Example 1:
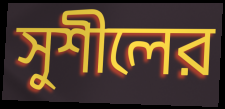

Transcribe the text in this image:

সুশীলের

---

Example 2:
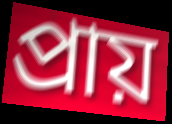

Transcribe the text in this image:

প্রায়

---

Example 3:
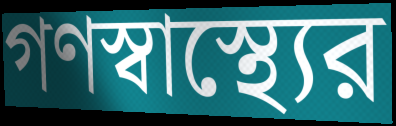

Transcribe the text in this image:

গণস্বাস্থ্যের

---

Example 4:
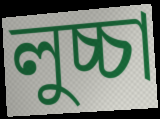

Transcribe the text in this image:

লুচ্চা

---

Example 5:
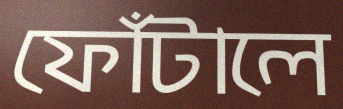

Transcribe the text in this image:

ফোঁটালে